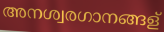
അനശ്വരഗാനങ്ങള്